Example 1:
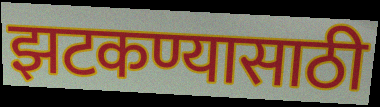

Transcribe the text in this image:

झटकण्यासाठी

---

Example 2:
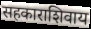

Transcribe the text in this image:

सहकाराशिवाय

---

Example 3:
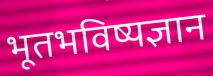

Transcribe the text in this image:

भूतभविष्यज्ञान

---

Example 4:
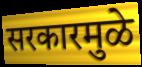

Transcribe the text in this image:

सरकारमुळे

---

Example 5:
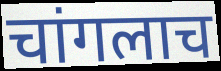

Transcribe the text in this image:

चांगलाच